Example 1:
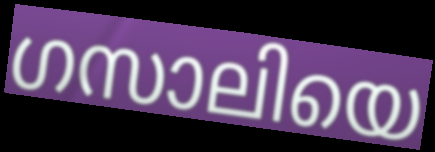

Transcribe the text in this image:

ഗസാലിയെ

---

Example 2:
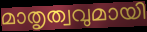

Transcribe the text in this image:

മാതൃത്വവുമായി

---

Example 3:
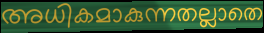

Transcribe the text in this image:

അധികമാകുന്നതല്ലാതെ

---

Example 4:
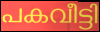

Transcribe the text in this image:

പകവീട്ടി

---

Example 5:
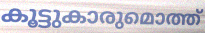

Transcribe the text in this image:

കൂട്ടുകാരുമൊത്ത്